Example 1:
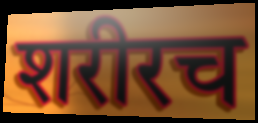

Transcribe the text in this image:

शरीरच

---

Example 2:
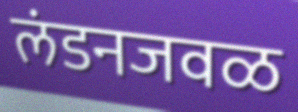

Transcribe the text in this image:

लंडनजवळ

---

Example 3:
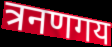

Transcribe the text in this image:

त्रनणगय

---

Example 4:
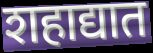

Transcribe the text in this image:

शहाद्यात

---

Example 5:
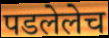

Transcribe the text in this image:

पडलेलेच